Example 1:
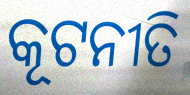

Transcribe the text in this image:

କୂଟନୀତି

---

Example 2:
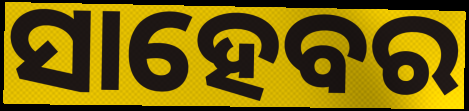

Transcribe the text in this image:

ସାହେବର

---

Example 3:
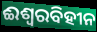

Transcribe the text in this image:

ଈଶ୍ୱରବିହୀନ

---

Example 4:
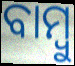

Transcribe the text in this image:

ବାମ୍ବୁ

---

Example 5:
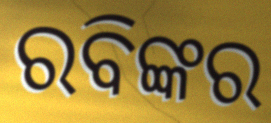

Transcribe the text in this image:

ରବିଙ୍କର